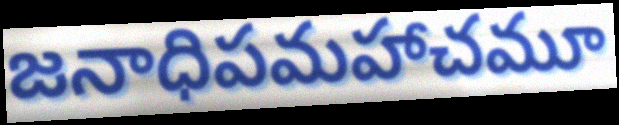
జనాధిపమహాచమూ